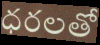
ధరలతో